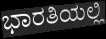
ಭಾರತಿಯಲ್ಲಿ